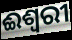
ଈଶ୍ଵରୀ